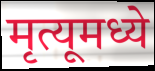
मृत्यूमध्ये